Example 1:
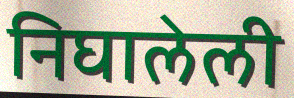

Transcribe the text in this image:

निघालेली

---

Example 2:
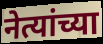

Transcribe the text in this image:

नेत्यांच्या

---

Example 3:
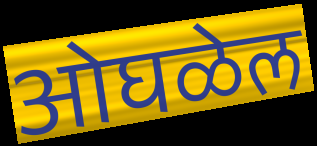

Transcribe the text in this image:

ओघळेल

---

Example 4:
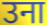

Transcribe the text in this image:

उना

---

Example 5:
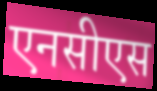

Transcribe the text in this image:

एनसीएस